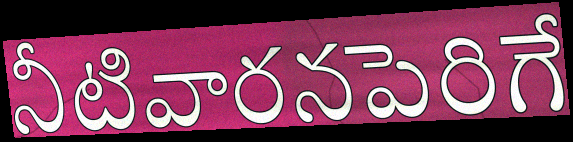
నీటివారనపెరిగే